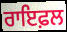
ਰਾਇਫ਼ਲ